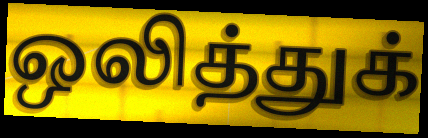
ஒலித்துக்